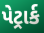
પેટ્રાર્ક